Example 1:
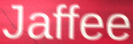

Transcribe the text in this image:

Jaffee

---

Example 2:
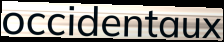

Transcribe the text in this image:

occidentaux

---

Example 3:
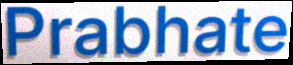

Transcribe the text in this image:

Prabhate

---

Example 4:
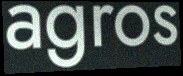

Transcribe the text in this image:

agros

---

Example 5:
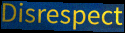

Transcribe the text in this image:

Disrespect